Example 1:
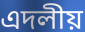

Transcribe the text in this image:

এদলীয়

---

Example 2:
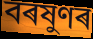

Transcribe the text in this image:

বৰষুণৰ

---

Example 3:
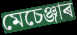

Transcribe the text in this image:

মেচেঞ্জাৰ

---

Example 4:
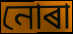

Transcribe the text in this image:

নোৰা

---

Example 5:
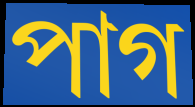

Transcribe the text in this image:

পাগ